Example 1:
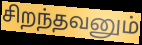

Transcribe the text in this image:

சிறந்தவனும்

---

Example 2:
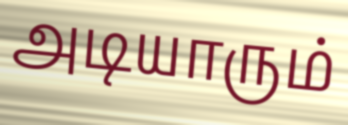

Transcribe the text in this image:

அடியாரும்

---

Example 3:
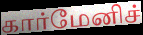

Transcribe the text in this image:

கார்மேனிச்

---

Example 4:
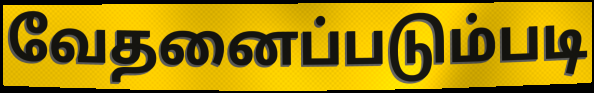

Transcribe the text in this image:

வேதனைப்படும்படி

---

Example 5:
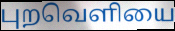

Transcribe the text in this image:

புறவெளியை